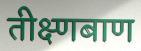
तीक्ष्णबाण